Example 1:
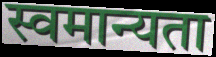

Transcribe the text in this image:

स्वमान्यता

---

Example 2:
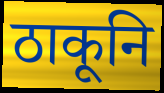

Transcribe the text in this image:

ठाकूनि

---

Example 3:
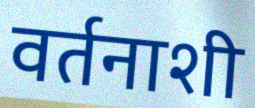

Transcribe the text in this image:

वर्तनाशी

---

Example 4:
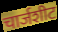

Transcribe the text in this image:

चार्जशीट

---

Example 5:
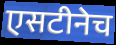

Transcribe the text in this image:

एसटीनेच